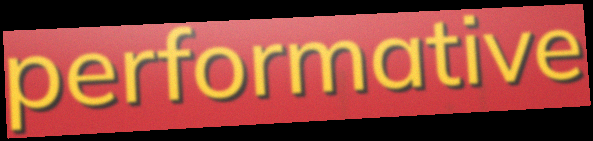
performative